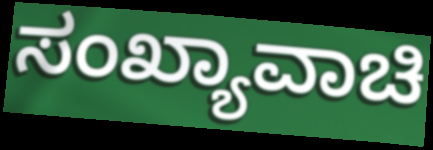
ಸಂಖ್ಯಾವಾಚಿ